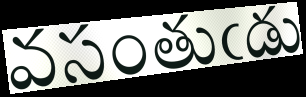
వసంతుఁడు